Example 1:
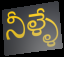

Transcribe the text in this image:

నీళ్ళే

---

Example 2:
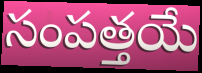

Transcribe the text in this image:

సంపత్తయే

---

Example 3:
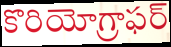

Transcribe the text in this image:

కొరియోగ్రాఫర్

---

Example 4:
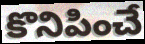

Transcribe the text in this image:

కొనిపించే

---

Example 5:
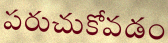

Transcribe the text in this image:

పరుచుకోవడం